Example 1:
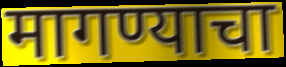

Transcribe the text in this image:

मागण्याचा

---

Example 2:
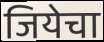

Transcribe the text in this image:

जियेचा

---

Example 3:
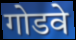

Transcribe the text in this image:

गोडवे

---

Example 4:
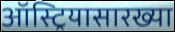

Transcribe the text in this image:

ऑस्ट्रियासारख्या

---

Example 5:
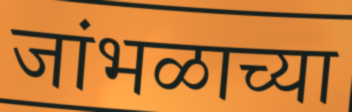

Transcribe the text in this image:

जांभळाच्या